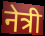
नेत्री